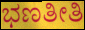
ಭಣತೀತಿ